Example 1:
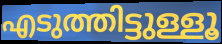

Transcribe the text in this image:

എടുത്തിട്ടുള്ളൂ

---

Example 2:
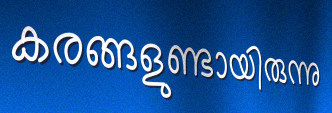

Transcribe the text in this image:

കരങ്ങളുണ്ടായിരുന്നു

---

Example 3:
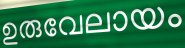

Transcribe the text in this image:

ഉരുവേലായം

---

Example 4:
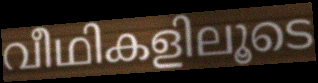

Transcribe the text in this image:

വീഥികളിലൂടെ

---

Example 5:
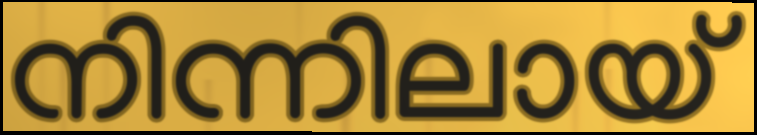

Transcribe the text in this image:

നിന്നിലായ്